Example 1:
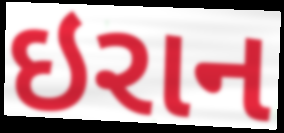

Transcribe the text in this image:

ઇરાન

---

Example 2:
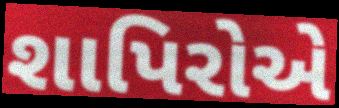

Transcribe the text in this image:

શાપિરોએ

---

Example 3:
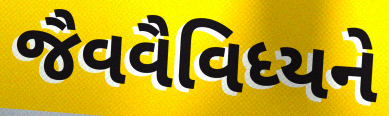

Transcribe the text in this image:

જૈવવૈવિધ્યને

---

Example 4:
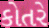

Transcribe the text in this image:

કોતરે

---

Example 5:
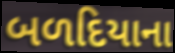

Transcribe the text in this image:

બળદિયાના